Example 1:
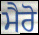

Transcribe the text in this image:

ਮੈਰੋ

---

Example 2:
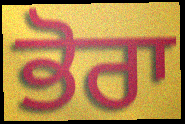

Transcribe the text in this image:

ਭੋਰਾ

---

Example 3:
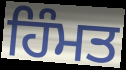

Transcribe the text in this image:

ਹਿੰਮਤ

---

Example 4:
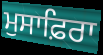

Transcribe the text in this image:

ਮੁਸਾਫ਼ਿਰਾ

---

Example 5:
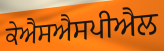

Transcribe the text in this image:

ਕੇਐਸਐਸਪੀਐਲ